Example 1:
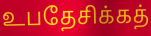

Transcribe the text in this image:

உபதேசிக்கத்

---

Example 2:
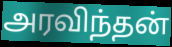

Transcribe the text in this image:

அரவிந்தன்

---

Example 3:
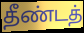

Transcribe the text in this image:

தீண்டத்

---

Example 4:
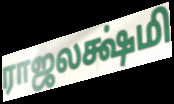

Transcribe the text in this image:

ராஜலக்ஷ்மி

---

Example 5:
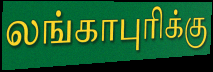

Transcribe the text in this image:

லங்காபுரிக்கு